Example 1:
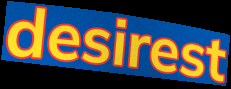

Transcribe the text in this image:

desirest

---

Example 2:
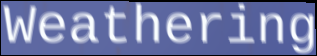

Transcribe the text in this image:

Weathering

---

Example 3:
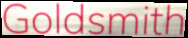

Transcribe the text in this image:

Goldsmith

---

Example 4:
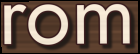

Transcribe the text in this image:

rom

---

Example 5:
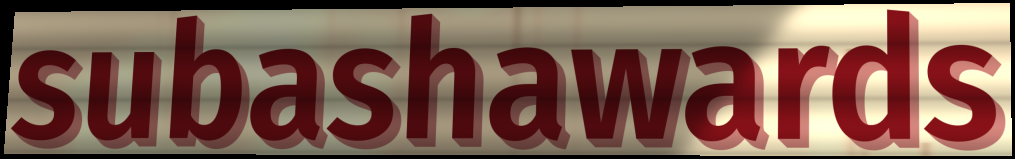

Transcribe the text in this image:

subashawards